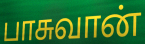
பாசுவான்